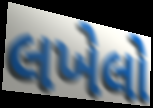
લખેલો